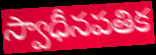
స్వాధీనపతిక